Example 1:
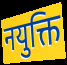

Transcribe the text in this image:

नयुक्ति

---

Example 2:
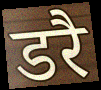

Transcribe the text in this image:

डरै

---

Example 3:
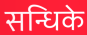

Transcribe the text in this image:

सन्धिके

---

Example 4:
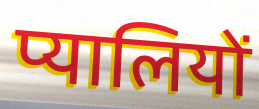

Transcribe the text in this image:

प्यालियों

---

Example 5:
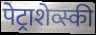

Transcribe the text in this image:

पेट्राशेव्स्की